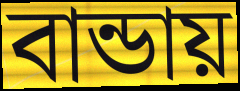
বান্ডায়